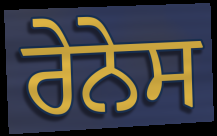
ਰੇਨੇਸ